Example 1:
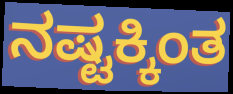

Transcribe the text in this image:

ನಷ್ಟಕ್ಕಿಂತ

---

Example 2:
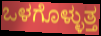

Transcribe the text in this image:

ಒಳಗೊಳ್ಳುತ್ತ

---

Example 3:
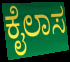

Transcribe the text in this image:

ಕೈಲಾಸ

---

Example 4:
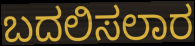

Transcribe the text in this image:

ಬದಲಿಸಲಾರ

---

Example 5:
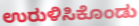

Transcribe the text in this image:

ಉರುಳಿಸಿಕೊಂಡು